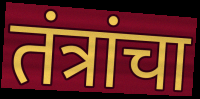
तंत्रांचा